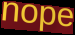
nope